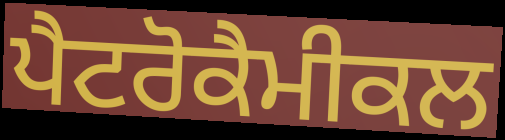
ਪੈਟਰੋਕੈਮੀਕਲ